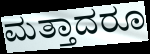
ಮತ್ತಾದರೂ